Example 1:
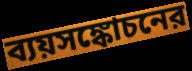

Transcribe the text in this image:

ব্যয়সঙ্কোচনের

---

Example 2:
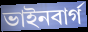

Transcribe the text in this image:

ভাইনবার্গ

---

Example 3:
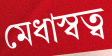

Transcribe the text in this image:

মেধাস্বত্ব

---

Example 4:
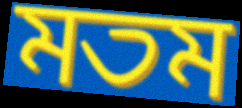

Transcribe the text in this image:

মতম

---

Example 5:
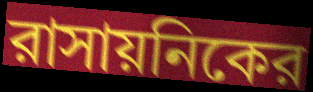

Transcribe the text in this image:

রাসায়নিকের